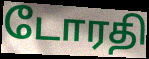
டோரதி